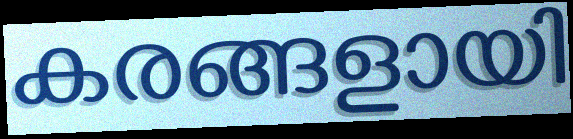
കരങ്ങളായി